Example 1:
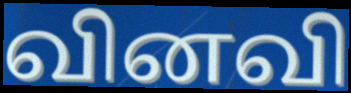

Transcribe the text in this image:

வினவி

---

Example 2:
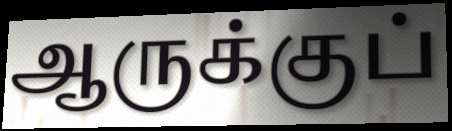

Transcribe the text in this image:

ஆருக்குப்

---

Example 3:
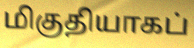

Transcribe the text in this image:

மிகுதியாகப்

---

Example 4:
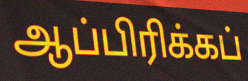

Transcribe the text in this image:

ஆப்பிரிக்கப்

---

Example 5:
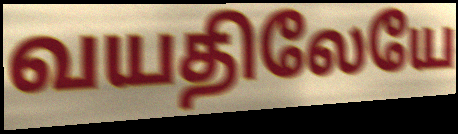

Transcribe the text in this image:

வயதிலேயே